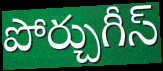
పోర్చుగీస్